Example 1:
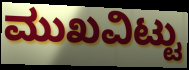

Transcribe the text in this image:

ಮುಖವಿಟ್ಟು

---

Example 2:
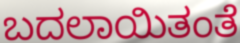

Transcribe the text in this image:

ಬದಲಾಯಿತಂತೆ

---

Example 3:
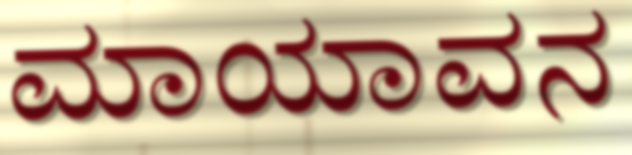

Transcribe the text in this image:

ಮಾಯಾವನ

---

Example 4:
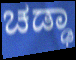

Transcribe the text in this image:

ಚಡ್ಢಾ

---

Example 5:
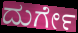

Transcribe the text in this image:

ದುರ್ಗೇ